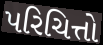
પરિચિત્તો